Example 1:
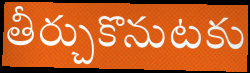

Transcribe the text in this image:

తీర్చుకొనుటకు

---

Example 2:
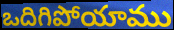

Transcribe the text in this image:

ఒదిగిపోయాము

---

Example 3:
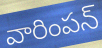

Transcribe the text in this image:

వారింపన్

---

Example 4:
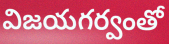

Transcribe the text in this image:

విజయగర్వంతో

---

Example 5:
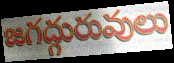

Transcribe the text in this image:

జగద్గురువులు